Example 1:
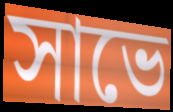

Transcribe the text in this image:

সাভে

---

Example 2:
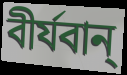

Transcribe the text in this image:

বীর্যবান্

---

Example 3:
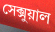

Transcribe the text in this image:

সেক্সুয়াল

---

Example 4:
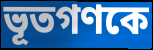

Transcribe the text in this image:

ভূতগণকে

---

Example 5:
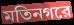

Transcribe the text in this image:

মতিনগরে